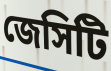
জেসিটি